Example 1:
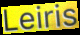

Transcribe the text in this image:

Leiris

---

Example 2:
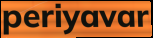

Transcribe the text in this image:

periyavar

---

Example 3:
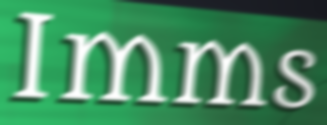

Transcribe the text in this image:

Imms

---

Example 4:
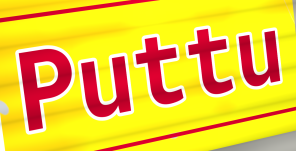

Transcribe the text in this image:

Puttu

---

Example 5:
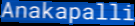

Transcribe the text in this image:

Anakapalli